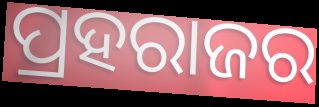
ପ୍ରହରାଜର